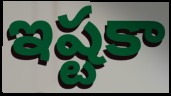
ఇష్టకా